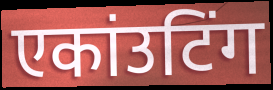
एकांउटिंग